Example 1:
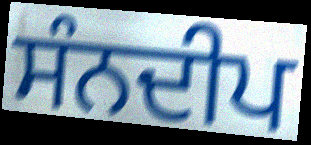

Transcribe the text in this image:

ਸੰਨਦੀਪ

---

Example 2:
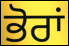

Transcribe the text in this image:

ਭੋਰਾਂ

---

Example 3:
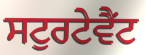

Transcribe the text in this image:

ਸਟੁਰਟੇਵੈਂਟ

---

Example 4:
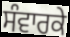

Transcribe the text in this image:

ਸੰਵਾਰਕੇ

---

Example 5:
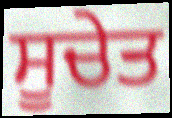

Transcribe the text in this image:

ਸੂਚੇਤ